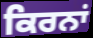
ਕਿਰਨਾਂ